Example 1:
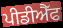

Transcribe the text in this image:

ਪੀਡੀਐੱਫ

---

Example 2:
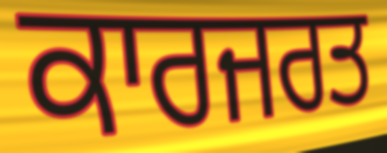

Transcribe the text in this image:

ਕਾਰਜਰਤ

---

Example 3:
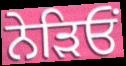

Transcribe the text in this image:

ਨੇੜਿਓਂ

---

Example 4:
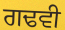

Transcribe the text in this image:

ਗਢਵੀ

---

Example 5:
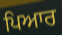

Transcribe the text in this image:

ਪਿਆਰ